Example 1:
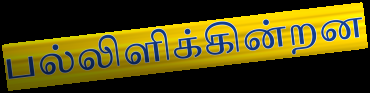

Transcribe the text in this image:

பல்லிளிக்கின்றன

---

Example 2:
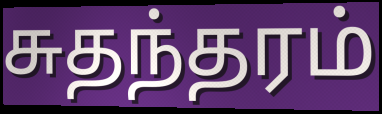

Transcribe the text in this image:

சுதந்தரம்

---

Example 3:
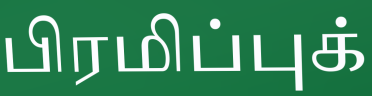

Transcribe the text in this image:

பிரமிப்புக்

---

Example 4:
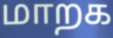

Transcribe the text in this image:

மாறக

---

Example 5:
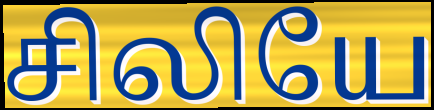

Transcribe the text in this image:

சிலியே